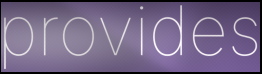
provides